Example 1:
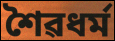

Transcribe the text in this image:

শৈৱধৰ্ম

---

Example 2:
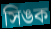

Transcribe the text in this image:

সিঙক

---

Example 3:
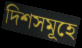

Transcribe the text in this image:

দিশসমূহে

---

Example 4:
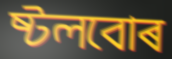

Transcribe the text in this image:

ষ্টলবোৰ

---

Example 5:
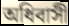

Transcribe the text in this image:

অধিবাসী